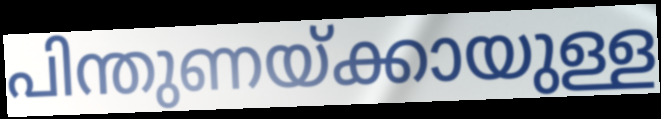
പിന്തുണയ്ക്കായുള്ള